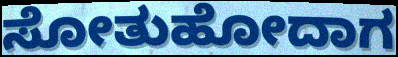
ಸೋತುಹೋದಾಗ